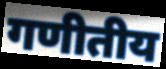
गणीतीय